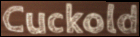
Cuckold